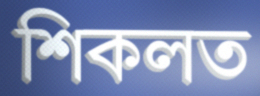
শিকলত